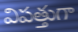
విపత్తుగా